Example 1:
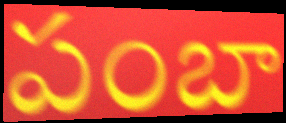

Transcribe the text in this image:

పంబా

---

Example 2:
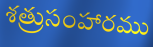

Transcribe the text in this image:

శత్రుసంహారము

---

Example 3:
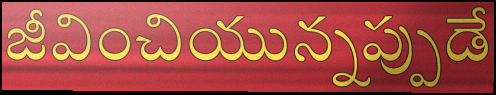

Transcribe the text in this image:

జీవించియున్నప్పుడే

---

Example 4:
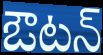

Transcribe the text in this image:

ఔటన్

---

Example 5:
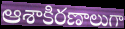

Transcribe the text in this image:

ఆశాకిరణాలుగా